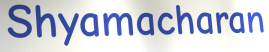
Shyamacharan